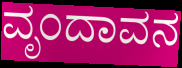
ವೃಂದಾವನ